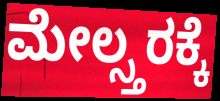
ಮೇಲ್ಸ್ತರಕ್ಕೆ